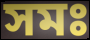
সমঃ